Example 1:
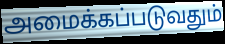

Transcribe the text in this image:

அமைக்கப்படுவதும்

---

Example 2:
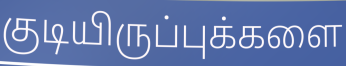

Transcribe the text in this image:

குடியிருப்புக்களை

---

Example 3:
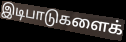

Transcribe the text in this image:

இடிபாடுகளைக்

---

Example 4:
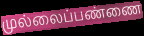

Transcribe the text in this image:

முல்லைப்பண்ணை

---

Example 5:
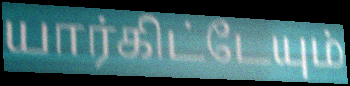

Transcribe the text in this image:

யார்கிட்டேயும்